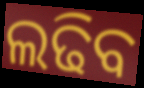
ଲଢିବ